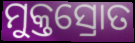
ମୁକ୍ତସ୍ରୋତ